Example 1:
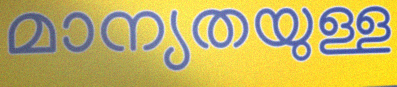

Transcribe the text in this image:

മാന്യതയുള്ള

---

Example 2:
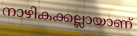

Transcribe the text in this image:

നാഴികക്കല്ലായാണ്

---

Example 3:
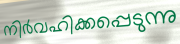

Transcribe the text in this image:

നിർവഹിക്കപ്പെടുന്നു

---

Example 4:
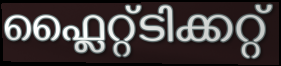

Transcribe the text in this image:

ഫ്ലൈറ്റ്ടിക്കറ്റ്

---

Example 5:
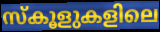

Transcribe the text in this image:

സ്കൂളുകളിലെ